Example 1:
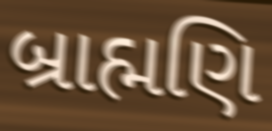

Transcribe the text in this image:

બ્રાહ્મણિ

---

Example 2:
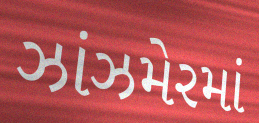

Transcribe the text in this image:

ઝાંઝમેરમાં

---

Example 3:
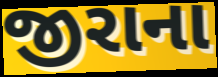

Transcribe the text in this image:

જીરાના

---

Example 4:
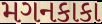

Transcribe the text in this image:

મગનકાકા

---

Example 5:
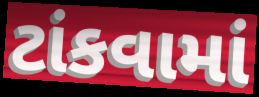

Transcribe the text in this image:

ટાંકવામાં